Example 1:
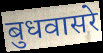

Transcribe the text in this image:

बुधवासरे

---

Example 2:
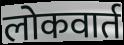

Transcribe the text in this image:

लोकवार्त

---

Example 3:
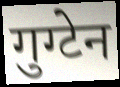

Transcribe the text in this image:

गुग्टेन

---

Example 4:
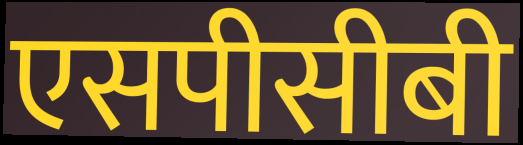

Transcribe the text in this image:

एसपीसीबी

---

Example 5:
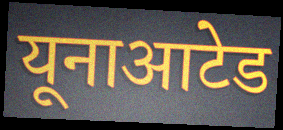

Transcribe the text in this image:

यूनाआटेड